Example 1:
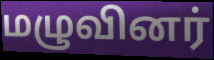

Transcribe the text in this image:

மழுவினர்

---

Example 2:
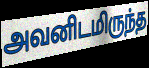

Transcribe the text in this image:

அவனிடமிருந்த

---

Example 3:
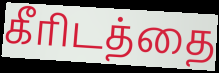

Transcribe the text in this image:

கீரிடத்தை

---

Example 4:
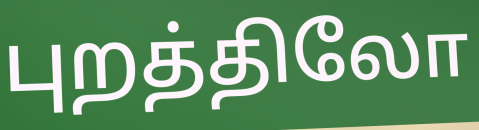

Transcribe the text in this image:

புறத்திலோ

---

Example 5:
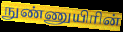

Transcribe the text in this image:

நுண்ணுயிரின்